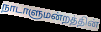
நாடாளுமன்றத்தின்